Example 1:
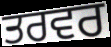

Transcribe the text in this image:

ਤਰਵਰ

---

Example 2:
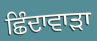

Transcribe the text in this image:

ਛਿੰਦਾਵਾੜਾ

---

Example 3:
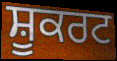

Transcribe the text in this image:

ਸ਼ੂਕਰਟ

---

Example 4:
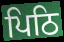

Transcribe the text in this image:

ਪਿਠਿ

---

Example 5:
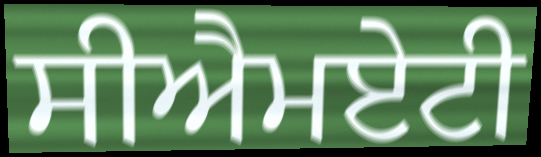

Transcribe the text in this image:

ਸੀਐਮਏਟੀ